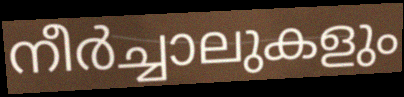
നീർച്ചാലുകളും